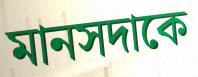
মানসদাকে